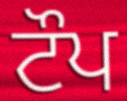
ਟੌਪ